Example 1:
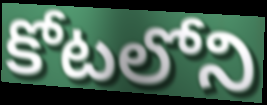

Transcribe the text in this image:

కోటలోని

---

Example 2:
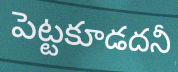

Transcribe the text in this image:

పెట్టకూడదనీ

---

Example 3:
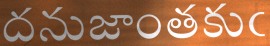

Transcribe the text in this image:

దనుజాంతకుఁ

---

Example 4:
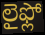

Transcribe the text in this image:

లైఫ్లో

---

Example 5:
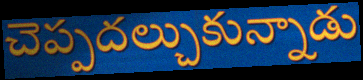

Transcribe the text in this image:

చెప్పదల్చుకున్నాడు